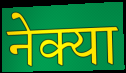
नेक्या